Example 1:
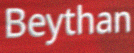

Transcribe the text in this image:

Beythan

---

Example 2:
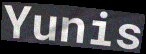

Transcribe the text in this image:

Yunis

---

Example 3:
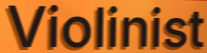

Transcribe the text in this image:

Violinist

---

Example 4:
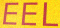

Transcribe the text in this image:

EEL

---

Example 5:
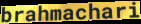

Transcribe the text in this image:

brahmachari